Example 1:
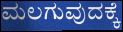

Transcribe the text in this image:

ಮಲಗುವುದಕ್ಕೆ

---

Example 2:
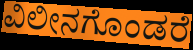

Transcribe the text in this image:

ವಿಲೀನಗೊಂಡರೆ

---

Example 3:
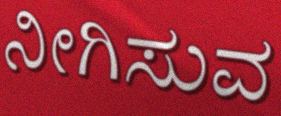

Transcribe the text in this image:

ನೀಗಿಸುವ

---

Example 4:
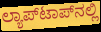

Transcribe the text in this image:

ಲ್ಯಾಪ್‌ಟಾಪ್‌ನಲ್ಲಿ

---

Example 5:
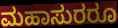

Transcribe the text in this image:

ಮಹಾಸುರರೂ